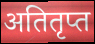
अतितृप्त